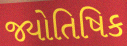
જ્યોતિષિક